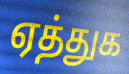
ஏத்துக